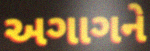
અગાગને